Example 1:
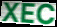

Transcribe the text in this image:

XEC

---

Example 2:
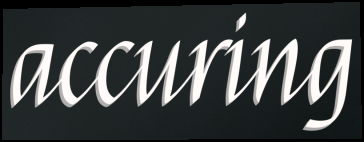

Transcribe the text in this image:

accuring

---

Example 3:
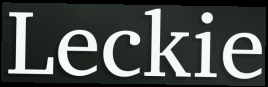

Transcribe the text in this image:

Leckie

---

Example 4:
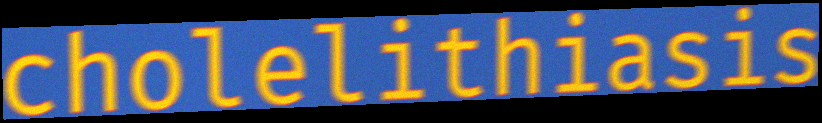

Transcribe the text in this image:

cholelithiasis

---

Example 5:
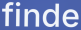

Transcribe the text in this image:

finde